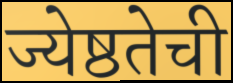
ज्येष्ठतेची